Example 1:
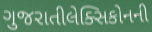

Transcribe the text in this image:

ગુજરાતીલેક્સિકોનની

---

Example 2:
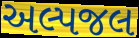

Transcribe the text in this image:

અલ્પજલ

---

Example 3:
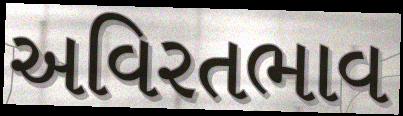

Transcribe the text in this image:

અવિરતભાવ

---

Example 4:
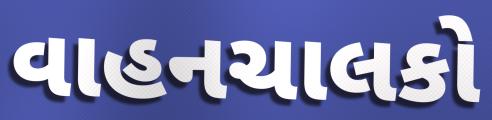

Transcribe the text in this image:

વાહનચાલકો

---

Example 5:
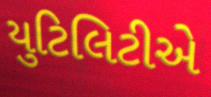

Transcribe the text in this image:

યુટિલિટીએ